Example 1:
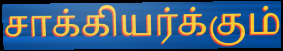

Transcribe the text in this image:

சாக்கியர்க்கும்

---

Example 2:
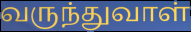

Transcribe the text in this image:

வருந்துவாள்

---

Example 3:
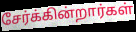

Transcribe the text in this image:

சேர்க்கின்றார்கள்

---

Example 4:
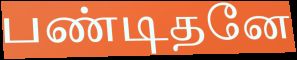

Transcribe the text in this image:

பண்டிதனே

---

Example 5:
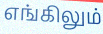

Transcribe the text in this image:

எங்கிலும்